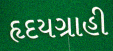
હૃદયગ્રાહી